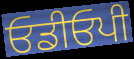
ਓਡੀਓਪੀ